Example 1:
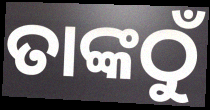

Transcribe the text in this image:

ତାଙ୍କଠୁଁ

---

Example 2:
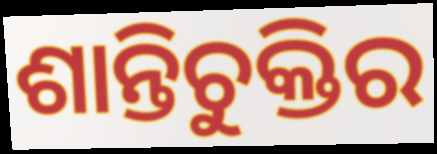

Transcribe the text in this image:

ଶାନ୍ତିଚୁକ୍ତିର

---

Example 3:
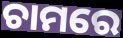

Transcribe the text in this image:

ଚାମରେ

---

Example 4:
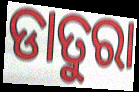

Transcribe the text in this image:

ଡାତୁରା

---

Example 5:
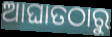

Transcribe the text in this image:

ଆଘାତଠାରୁ